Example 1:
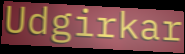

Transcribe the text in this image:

Udgirkar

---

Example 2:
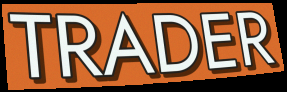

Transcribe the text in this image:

TRADER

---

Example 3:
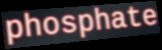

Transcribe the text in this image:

phosphate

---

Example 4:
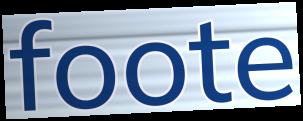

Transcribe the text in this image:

foote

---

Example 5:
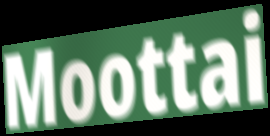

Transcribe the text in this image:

Moottai